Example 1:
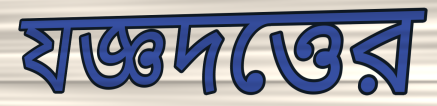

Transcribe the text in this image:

যজ্ঞদত্তের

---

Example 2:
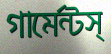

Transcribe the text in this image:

গার্মেন্টস্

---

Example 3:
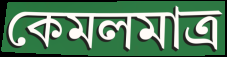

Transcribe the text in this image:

কেমলমাত্র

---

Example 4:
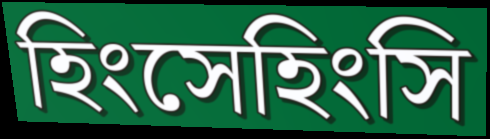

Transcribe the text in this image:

হিংসেহিংসি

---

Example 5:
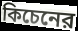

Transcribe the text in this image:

কিচেনের